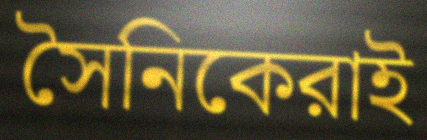
সৈনিকেরাই